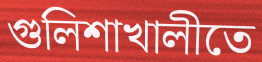
গুলিশাখালীতে